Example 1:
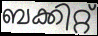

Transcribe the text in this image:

ബക്കിറ്റ്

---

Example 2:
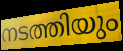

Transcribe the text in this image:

നടത്തിയും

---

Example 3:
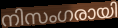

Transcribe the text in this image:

നിസംഗരായി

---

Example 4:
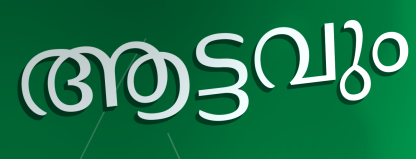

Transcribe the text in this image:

ആട്ടവും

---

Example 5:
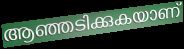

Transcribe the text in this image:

ആഞ്ഞടിക്കുകയാണ്